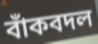
বাঁকবদল